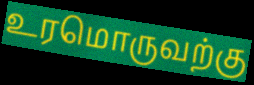
உரமொருவற்கு